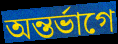
অন্তর্ভাগে